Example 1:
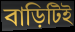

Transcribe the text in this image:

বাড়িটিই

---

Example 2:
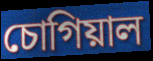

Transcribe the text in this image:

চোগিয়াল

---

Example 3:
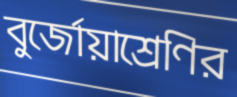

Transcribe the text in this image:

বুর্জোয়াশ্রেণির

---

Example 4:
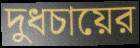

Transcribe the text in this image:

দুধচায়ের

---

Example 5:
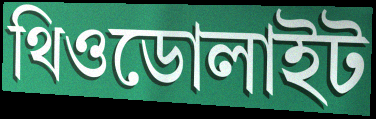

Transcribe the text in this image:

থিওডোলাইট